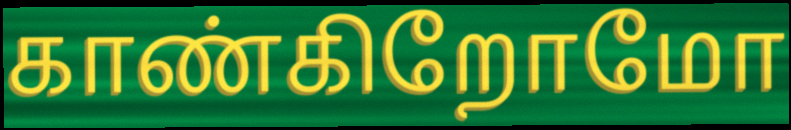
காண்கிறோமோ